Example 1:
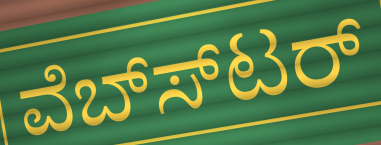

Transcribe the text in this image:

ವೆಬ್ಸ್‍ಟರ್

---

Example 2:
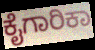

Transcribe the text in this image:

ಕೈಗಾರಿಕಾ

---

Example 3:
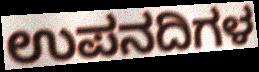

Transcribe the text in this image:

ಉಪನದಿಗಳ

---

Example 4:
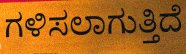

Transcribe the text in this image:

ಗಳಿಸಲಾಗುತ್ತಿದೆ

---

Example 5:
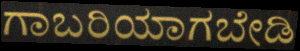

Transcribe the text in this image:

ಗಾಬರಿಯಾಗಬೇಡಿ